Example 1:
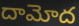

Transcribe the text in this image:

దామోద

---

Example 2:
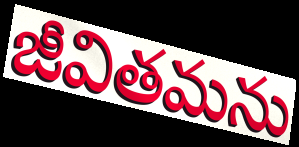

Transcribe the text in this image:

జీవితమను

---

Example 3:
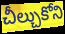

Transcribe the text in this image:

చీల్చుకోని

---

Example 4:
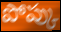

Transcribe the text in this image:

పోప్కు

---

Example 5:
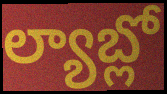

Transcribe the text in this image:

ల్యాబ్లో